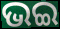
ଭଇ